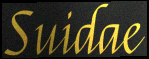
Suidae